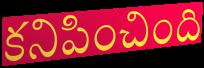
కనిపించింది